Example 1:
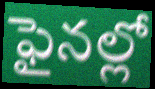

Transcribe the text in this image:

ఫైనల్లో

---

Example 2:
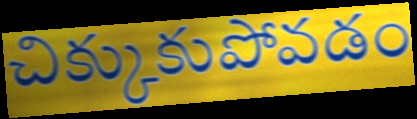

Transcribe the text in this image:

చిక్కుకుపోవడం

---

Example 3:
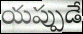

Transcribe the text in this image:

యప్పుడే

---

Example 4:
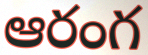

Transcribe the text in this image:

ఆరంగ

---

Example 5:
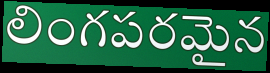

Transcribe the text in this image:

లింగపరమైన